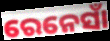
ରେନେସାଁ